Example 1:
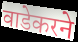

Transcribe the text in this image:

वाडेकरने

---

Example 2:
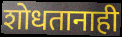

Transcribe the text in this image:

शोधतानाही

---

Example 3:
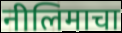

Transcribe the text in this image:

नीलिमाचा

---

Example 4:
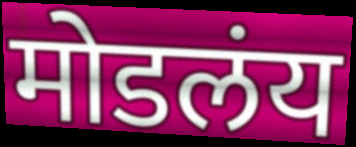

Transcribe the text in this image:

मोडलंय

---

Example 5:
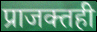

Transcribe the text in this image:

प्राजक्तही